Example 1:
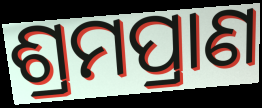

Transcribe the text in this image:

ଶ୍ରମପ୍ରାଣ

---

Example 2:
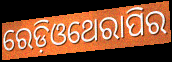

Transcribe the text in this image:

ରେଡ଼ିଓଥେରାପିର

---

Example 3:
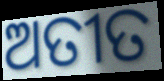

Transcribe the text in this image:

ଅତୀତ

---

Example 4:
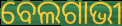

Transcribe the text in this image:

ବେଲଗାଭୀ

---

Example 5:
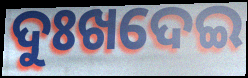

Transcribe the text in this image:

ଦୁଃଖଦେଇ